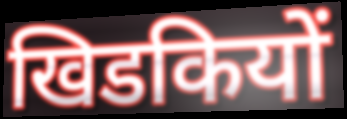
खिडकियों